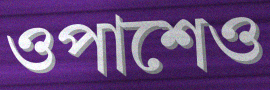
ওপাশেও